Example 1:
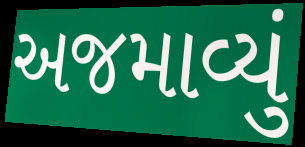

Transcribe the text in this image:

અજમાવ્યું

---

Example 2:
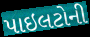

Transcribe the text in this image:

પાઇલટોની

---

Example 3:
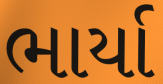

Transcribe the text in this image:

ભાર્યા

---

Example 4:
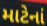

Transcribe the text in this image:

માટેનાં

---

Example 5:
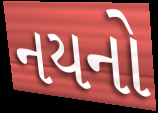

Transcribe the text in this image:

નયનો